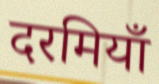
दरमियाँ